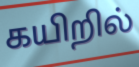
கயிறில்